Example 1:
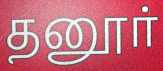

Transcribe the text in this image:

தனூர்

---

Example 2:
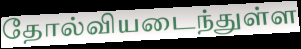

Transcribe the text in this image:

தோல்வியடைந்துள்ள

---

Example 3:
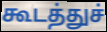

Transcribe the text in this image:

கூடத்துச்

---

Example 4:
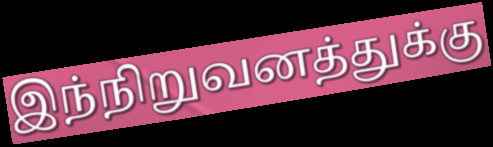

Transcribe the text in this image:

இந்நிறுவனத்துக்கு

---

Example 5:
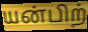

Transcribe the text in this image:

யன்பிற்